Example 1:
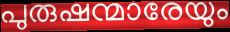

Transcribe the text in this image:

പുരുഷന്മാരേയും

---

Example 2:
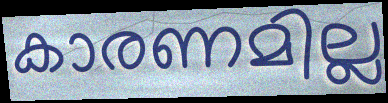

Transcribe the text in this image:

കാരണമില്ല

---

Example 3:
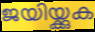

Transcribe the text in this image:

ജയിയ്ക്കുക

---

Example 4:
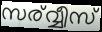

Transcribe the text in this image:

സര്വ്വീസ്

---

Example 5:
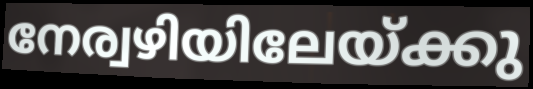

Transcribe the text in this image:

നേര്വഴിയിലേയ്ക്കു